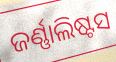
ଜର୍ଣ୍ଣାଲିଷ୍ଟସ